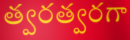
త్వరత్వరగా